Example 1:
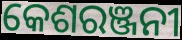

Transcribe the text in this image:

କେଶରଞ୍ଜନୀ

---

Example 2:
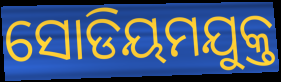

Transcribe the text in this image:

ସୋଡିୟମଯୁକ୍ତ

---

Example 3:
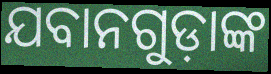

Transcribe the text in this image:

ଯବାନଗୁଡ଼ାଙ୍କ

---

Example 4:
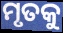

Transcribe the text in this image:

ମୃତକୁ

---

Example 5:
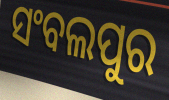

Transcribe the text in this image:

ସଂବଲପୁର